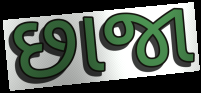
છાજા